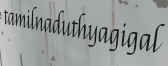
tamilnaduthyagigal